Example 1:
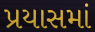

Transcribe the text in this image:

પ્રયાસમાં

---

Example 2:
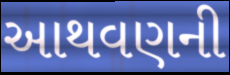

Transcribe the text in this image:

આથવણની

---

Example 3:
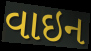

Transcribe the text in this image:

વાઇન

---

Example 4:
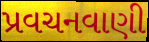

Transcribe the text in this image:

પ્રવચનવાણી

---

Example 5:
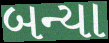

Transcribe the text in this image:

બન્યા